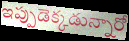
ఇప్పుడెక్కడున్నారో